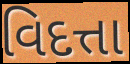
વિદત્તા